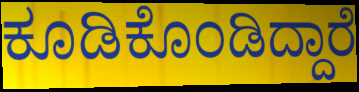
ಕೂಡಿಕೊಂಡಿದ್ದಾರೆ